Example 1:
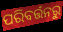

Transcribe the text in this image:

ପରିବର୍ତ୍ତନରୁ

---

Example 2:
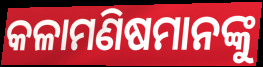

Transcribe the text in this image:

କଳାମଣିଷମାନଙ୍କୁ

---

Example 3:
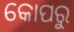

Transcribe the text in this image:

କୋପରୁ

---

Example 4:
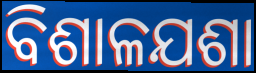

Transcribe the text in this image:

ବିଶାଳଯଶା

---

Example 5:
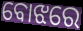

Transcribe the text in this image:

ବୋଝରେ